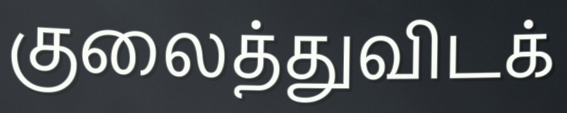
குலைத்துவிடக்